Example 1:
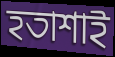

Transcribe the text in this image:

হতাশাই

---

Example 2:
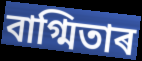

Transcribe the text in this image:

বাগ্মিতাৰ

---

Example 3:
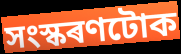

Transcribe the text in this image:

সংস্কৰণটোক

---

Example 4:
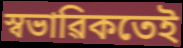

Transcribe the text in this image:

স্বভাৱিকতেই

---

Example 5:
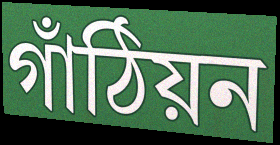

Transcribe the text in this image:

গাঁঠিয়ন